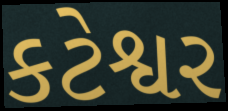
કટેશ્વર